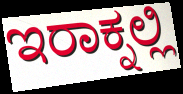
ಇರಾಕ್ನಲ್ಲಿ